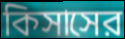
কিসাসের